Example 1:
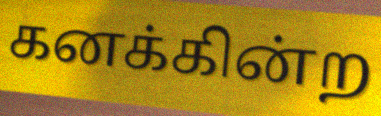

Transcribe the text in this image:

கனக்கின்ற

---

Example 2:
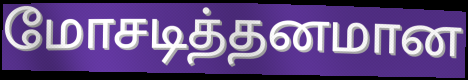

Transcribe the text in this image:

மோசடித்தனமான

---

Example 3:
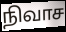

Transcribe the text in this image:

நிவாச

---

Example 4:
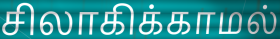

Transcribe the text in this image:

சிலாகிக்காமல்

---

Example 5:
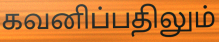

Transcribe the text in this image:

கவனிப்பதிலும்